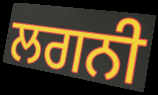
ਲਗਨੀ